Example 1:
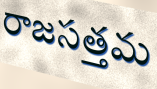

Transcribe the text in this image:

రాజసత్తమ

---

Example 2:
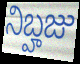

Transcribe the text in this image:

నిబ్హజు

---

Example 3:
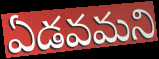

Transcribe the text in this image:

ఏడవమని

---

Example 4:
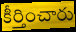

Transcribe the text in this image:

కీర్తించారు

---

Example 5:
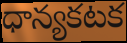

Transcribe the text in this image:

ధాన్యకటక